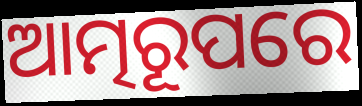
ଆତ୍ମରୂପରେ